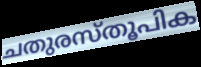
ചതുരസ്തൂപിക